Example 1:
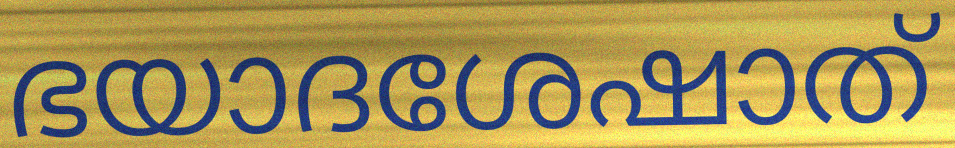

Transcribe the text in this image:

ഭയാദശേഷാത്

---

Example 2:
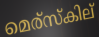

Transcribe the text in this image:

മെര്സ്കില്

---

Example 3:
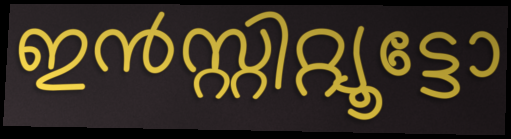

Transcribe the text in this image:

ഇൻസ്റ്റിറ്റ്യൂട്ടോ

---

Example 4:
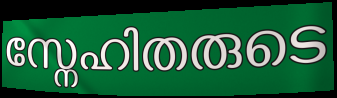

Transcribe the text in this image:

സ്നേഹിതരുടെ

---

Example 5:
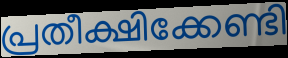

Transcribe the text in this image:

പ്രതീക്ഷിക്കേണ്ടി